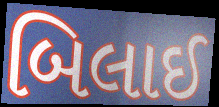
બિલાઈ